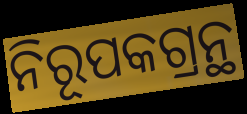
ନିରୂପକଗ୍ରନ୍ଥ